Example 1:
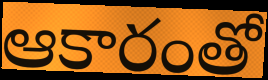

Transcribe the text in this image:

ఆకారంతో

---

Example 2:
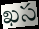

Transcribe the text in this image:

ఖస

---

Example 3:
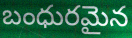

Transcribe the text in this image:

బంధురమైన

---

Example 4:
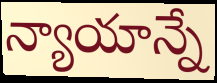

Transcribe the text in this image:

న్యాయాన్నే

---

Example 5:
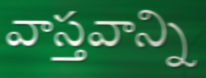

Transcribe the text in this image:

వాస్తవాన్ని